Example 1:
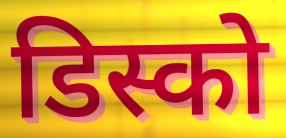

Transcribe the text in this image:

डिस्को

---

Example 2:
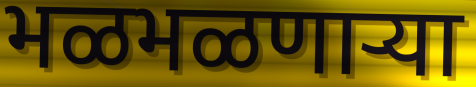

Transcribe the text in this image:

भळभळणाऱ्या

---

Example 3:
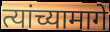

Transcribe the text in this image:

त्यांच्यामागे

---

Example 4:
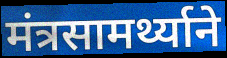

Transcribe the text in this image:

मंत्रसामर्थ्याने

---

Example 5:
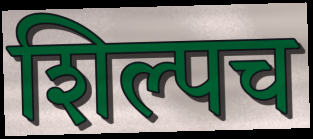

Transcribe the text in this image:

शिल्पच